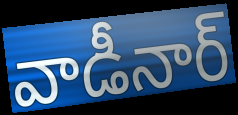
వాడీనార్